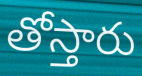
తోస్తారు